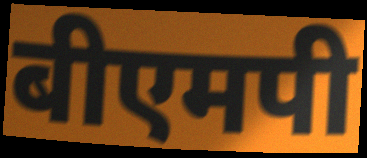
बीएमपी